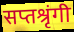
सप्तश्रृंगी